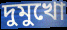
দুমুখো